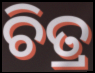
ଚିତ୍ର